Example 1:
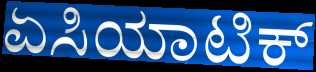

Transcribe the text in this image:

ಏಸಿಯಾಟಿಕ್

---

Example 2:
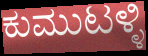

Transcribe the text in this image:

ಕುಮುಟಳ್ಳಿ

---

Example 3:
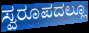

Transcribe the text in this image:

ಸ್ವರೂಪದಲ್ಲೂ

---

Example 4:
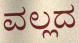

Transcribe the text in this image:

ವಲ್ಲದ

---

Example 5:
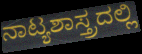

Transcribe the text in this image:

ನಾಟ್ಯಶಾಸ್ತ್ರದಲ್ಲಿ